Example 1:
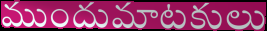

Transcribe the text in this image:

ముందుమాటకులు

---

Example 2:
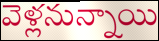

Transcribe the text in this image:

వెళ్లనున్నాయి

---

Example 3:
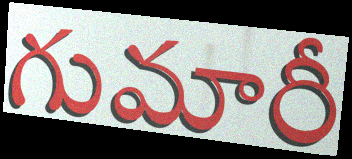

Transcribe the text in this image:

గుమారీ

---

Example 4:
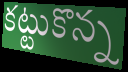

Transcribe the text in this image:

కట్టుకొన్న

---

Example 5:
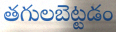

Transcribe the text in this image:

తగులబెట్టడం